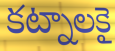
కట్నాలకై